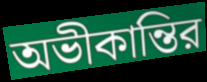
অভীকান্তির